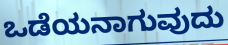
ಒಡೆಯನಾಗುವುದು